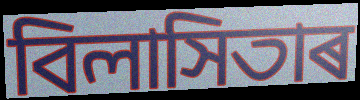
বিলাসিতাৰ